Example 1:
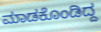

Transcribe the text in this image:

ಮಾಡಕೊಂಡಿದ್ದ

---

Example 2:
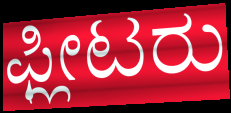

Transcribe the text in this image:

ಫ್ಲೀಟರು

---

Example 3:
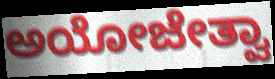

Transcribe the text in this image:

ಅಯೋಜೇತ್ವಾ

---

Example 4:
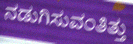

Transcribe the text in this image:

ನಡುಗಿಸುವಂತಿತ್ತು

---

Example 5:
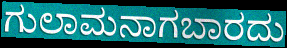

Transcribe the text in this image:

ಗುಲಾಮನಾಗಬಾರದು